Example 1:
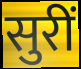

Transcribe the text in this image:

सुरीं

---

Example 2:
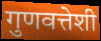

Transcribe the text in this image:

गुणवत्तेशी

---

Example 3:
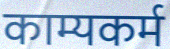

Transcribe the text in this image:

काम्यकर्म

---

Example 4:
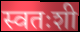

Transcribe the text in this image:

स्वतःशी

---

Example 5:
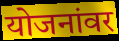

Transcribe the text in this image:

योजनांवर